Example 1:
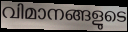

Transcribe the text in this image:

വിമാനങ്ങളുടെ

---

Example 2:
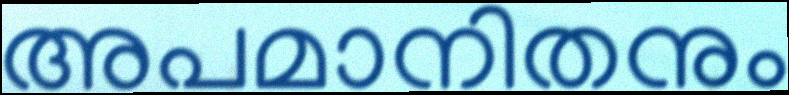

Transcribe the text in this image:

അപമാനിതനും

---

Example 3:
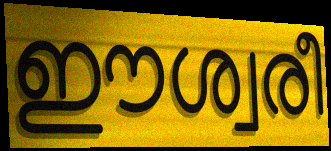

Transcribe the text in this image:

ഈശ്വരീ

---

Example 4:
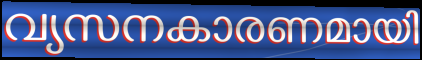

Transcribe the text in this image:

വ്യസനകാരണമായി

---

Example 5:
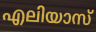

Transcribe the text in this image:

എലിയാസ്